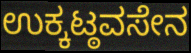
ಉಕ್ಕಟ್ಠವಸೇನ